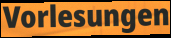
Vorlesungen